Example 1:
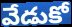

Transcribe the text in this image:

వేడుకో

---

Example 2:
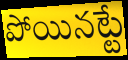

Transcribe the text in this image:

పోయినట్టే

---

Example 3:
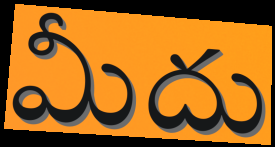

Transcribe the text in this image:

మీదు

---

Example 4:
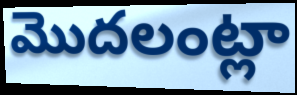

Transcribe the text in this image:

మొదలంట్లా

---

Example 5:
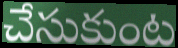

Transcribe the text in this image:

చేసుకుంట